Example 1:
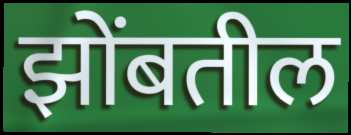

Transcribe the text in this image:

झोंबतील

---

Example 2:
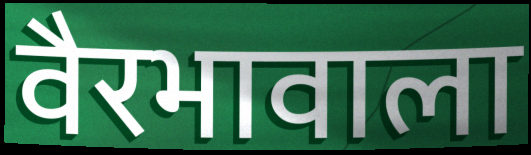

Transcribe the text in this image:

वैरभावाला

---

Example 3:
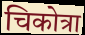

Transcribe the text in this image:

चिकोत्रा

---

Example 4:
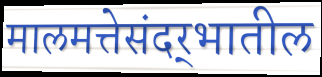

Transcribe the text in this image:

मालमत्तेसंदर्भातील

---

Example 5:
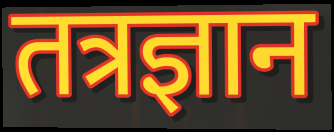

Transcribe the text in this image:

तत्रज्ञान